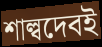
শাল্বদেবই